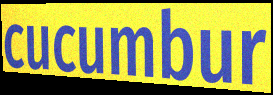
cucumbur